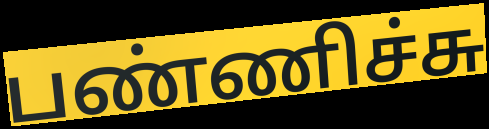
பண்ணிச்சு